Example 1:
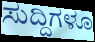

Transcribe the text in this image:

ಸುದ್ದಿಗಳೂ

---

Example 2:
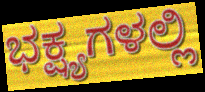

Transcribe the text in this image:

ಭಕ್ಷ್ಯಗಳಲ್ಲಿ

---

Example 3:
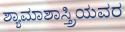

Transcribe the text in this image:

ಶ್ಯಾಮಾಶಾಸ್ತ್ರಿಯವರ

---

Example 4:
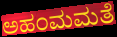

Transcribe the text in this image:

ಅಹಂಮಮತೆ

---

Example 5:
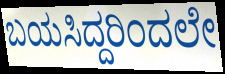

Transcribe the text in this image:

ಬಯಸಿದ್ದರಿಂದಲೇ